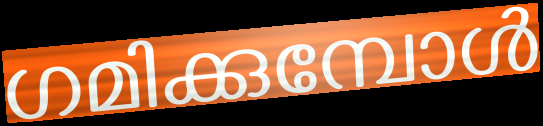
ഗമിക്കുമ്പോൾ